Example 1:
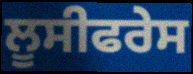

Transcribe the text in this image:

ਲੂਸੀਫਰੇਸ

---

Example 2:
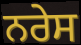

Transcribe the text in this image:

ਨਰੇਸ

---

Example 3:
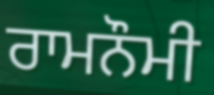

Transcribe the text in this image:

ਰਾਮਨੌਮੀ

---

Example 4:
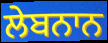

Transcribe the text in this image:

ਲੇਬਨਾਨ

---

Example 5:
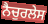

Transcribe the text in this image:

ਨੈਚੁਰਲੇਸ